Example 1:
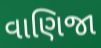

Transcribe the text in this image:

વાણિજા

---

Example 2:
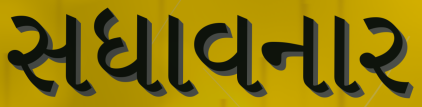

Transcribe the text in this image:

સધાવનાર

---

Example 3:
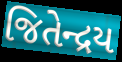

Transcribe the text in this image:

જિતેન્દ્રય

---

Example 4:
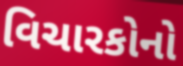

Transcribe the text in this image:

વિચારકોનો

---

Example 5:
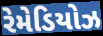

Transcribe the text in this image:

રેમેડિયોઝ